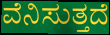
ವೆನಿಸುತ್ತದೆ